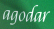
agodar